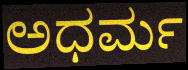
ಅಧರ್ಮ